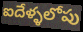
ఐదేళ్ళలోపు